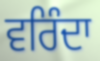
ਵਰਿੰਦਾ